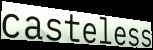
casteless